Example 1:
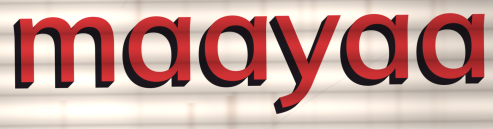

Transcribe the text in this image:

maayaa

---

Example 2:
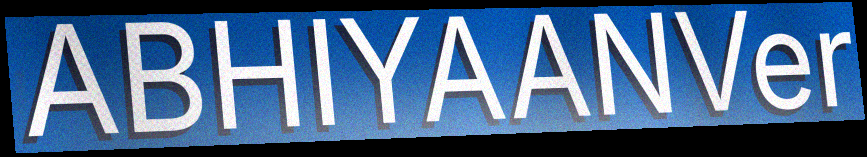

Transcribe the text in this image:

ABHIYAANVer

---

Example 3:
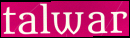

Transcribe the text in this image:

talwar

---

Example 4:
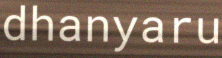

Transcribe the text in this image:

dhanyaru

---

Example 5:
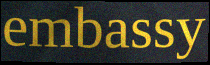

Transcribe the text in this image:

embassy